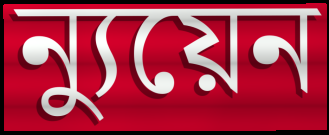
ন্যুয়েন